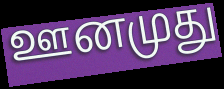
ஊனமுது